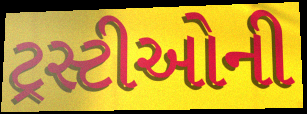
ટ્રસ્ટીઓની